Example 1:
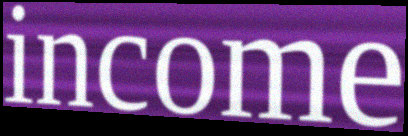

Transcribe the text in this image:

income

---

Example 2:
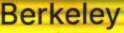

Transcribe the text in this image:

Berkeley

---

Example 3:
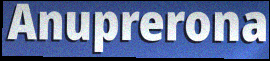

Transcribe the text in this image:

Anuprerona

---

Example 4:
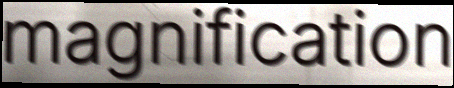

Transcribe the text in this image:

magnification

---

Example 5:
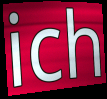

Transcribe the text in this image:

ich